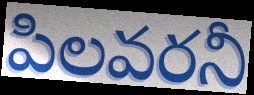
పిలవరనీ